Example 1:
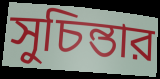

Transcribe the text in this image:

সুচিন্তার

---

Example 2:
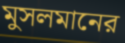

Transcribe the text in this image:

মুসলমানের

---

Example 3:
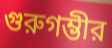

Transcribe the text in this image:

গুরুগম্ভীর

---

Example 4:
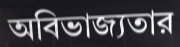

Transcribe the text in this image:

অবিভাজ্যতার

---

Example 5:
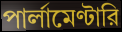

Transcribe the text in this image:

পার্লামেণ্টারি